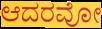
ಆದರವೋ